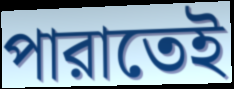
পারাতেই